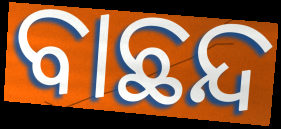
ବାଛନ୍ଦ